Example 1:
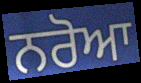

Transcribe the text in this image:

ਨਰੋਆ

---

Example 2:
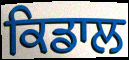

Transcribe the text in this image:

ਕਿਡਾਲ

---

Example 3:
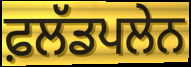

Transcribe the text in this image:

ਫ਼ਲੱਡਪਲੇਨ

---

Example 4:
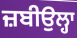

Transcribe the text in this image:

ਜ਼ਬੀਉਲ੍ਹਾ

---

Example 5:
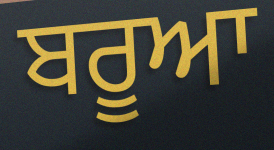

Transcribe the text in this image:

ਬਰੂਆ